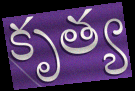
కృత్య